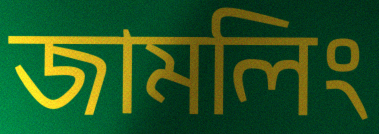
জামলিং